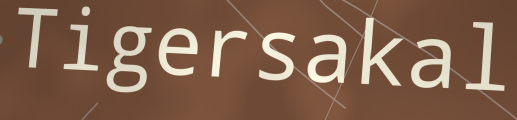
Tigersakal